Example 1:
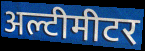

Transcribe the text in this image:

अल्टीमीटर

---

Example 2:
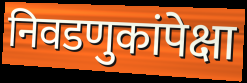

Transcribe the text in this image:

निवडणुकांपेक्षा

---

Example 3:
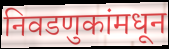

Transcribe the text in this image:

निवडणुकांमधून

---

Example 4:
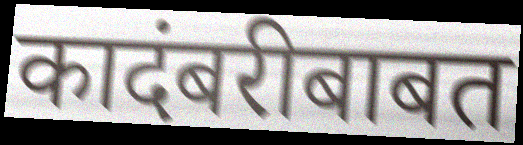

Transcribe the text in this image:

कादंबरीबाबत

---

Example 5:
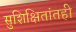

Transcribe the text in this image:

सुशिक्षितांतही